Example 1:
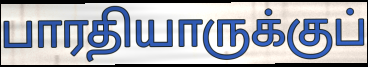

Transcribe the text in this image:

பாரதியாருக்குப்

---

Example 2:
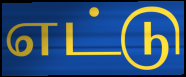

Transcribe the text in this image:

எட்டு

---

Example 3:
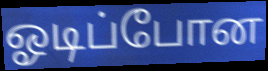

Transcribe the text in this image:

ஓடிப்போன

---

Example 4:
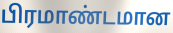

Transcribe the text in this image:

பிரமாண்டமான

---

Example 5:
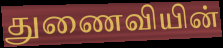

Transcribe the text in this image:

துணைவியின்